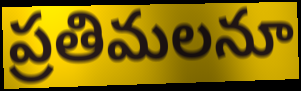
ప్రతిమలనూ